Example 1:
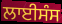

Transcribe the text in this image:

ਲਾਈਸੰਸ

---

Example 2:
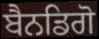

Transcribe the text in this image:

ਬੈਨਡਿਗੋ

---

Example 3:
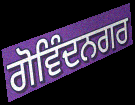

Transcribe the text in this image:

ਗੋਵਿੰਦਨਗਰ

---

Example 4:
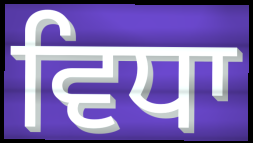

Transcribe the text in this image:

ਵਿਧਾ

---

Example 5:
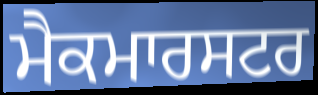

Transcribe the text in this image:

ਮੈਕਮਾਰਸਟਰ